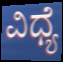
ವಿಧ್ಯೆ